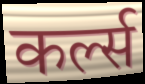
कर्ल्स